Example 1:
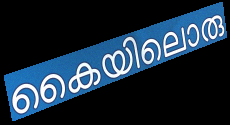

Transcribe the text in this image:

കൈയിലൊരു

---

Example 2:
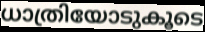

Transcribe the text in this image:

ധാത്രിയോടുകൂടെ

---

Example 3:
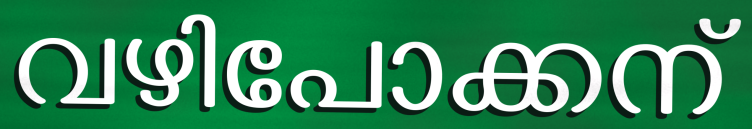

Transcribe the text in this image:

വഴിപോക്കന്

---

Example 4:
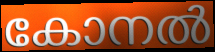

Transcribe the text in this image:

കോനൽ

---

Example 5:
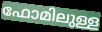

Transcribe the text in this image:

ഫോമിലുള്ള